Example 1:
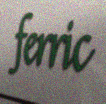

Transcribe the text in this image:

ferric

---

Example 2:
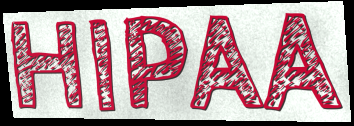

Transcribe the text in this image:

HIPAA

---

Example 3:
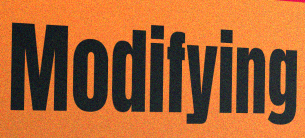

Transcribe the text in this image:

Modifying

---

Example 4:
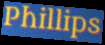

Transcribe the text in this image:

Phillips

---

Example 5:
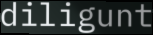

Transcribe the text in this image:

diligunt